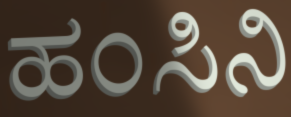
ಹಂಸಿನಿ